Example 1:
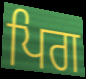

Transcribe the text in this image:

ਪਿਗ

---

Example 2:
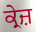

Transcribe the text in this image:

ਕ੍ਰੇਜ਼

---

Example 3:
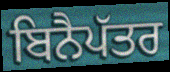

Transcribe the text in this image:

ਬਿਨੈਪੱਤਰ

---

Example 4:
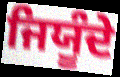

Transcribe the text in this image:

ਜਿਯੂੰਦੇ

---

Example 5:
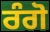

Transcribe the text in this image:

ਰੰਗੋ